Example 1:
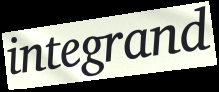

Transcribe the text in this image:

integrand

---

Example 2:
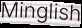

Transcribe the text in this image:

Minglish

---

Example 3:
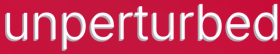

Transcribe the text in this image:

unperturbed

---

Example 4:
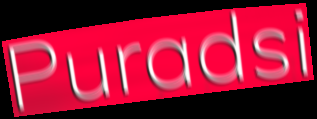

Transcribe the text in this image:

Puradsi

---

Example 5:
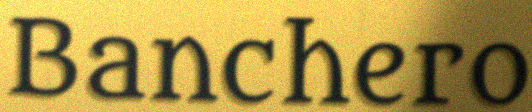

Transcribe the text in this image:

Banchero